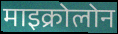
माइक्रोलोन